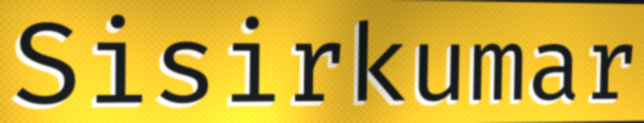
Sisirkumar